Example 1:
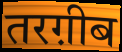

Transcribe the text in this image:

तरग़ीब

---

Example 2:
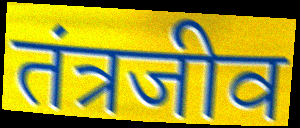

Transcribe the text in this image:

तंत्रजीव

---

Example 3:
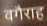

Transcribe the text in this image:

वगैराह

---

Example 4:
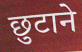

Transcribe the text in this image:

छुटाने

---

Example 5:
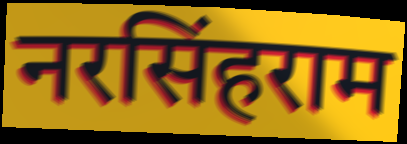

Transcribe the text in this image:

नरसिंहराम